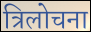
त्रिलोचना